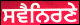
ਸਵੈਨਿਰਣੇ